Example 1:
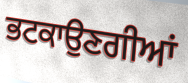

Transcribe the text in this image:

ਭਟਕਾਉਣਗੀਆਂ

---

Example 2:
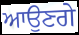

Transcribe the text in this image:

ਆਉਣਗੇ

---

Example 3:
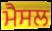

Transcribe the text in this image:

ਮੈਸਲ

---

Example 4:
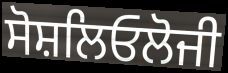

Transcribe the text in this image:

ਸੋਸ਼ਲਿਓਲੋਜੀ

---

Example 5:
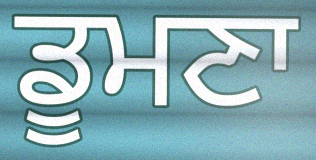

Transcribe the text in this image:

ਡੂਮਣਾ